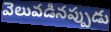
వెలువడినప్పుడు